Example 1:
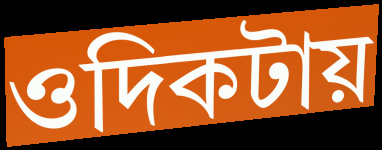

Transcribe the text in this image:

ওদিকটায়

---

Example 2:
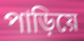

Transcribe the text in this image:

পাড়িয়ে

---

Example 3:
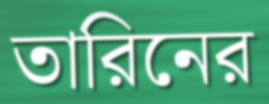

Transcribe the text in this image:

তারিনের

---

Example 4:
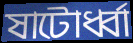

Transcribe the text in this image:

ষাটোর্ধ্বা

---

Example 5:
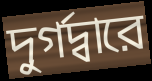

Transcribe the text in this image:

দুর্গদ্বারে